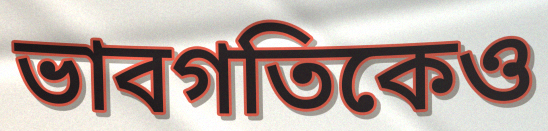
ভাবগতিকেও